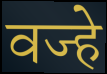
वज्हे